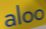
aloo